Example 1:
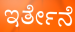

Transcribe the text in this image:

ಇರ್ತೇನೆ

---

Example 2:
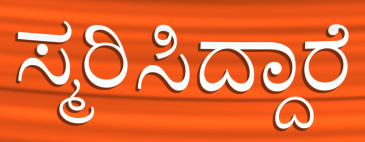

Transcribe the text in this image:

ಸ್ಮರಿಸಿದ್ದಾರೆ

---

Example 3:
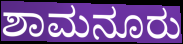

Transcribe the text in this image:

ಶಾಮನೂರು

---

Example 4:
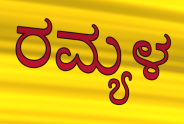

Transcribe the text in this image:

ರಮ್ಯಳ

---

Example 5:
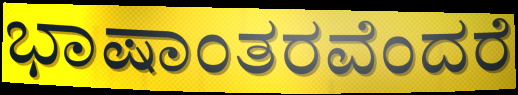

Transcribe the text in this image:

ಭಾಷಾಂತರವೆಂದರೆ